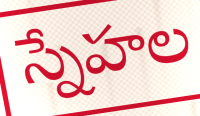
స్నేహల